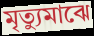
মৃত্যুমাঝে